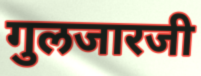
गुलजारजी